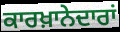
ਕਾਰਖ਼ਾਨੇਦਾਰਾਂ